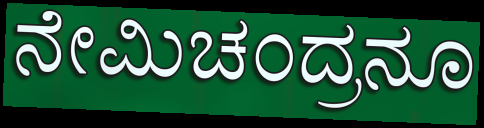
ನೇಮಿಚಂದ್ರನೂ